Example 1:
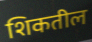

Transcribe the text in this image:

शिकतील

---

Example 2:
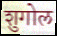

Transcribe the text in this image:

शुगोल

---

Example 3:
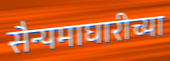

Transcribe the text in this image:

सैन्यमाघारीच्या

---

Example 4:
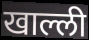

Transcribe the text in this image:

खाल्ली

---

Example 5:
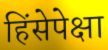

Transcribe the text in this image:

हिंसेपेक्षा